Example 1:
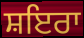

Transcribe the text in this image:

ਸ਼ਇਰਾ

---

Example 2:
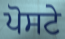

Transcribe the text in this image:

ਪੋਸਟੇ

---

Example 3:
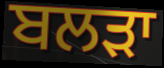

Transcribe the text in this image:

ਬਲੜਾ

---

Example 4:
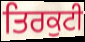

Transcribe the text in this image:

ਤਿਰਕੁਟੀ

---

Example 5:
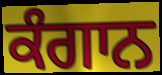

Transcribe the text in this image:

ਕੰਗਾਨ